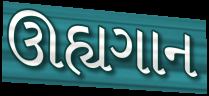
ઊહ્યગાન